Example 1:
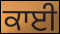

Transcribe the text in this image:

ਕਾਈ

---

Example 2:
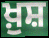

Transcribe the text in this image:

ਖ਼ੁਸ਼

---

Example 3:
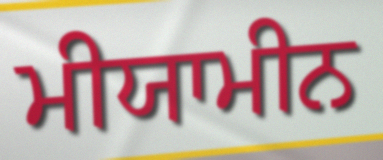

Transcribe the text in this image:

ਮੀਯਾਮੀਨ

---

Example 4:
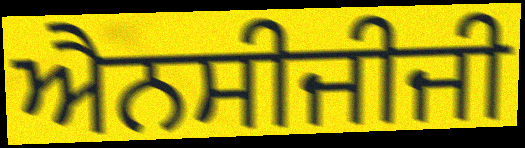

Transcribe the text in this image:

ਐਨਸੀਜੀਜੀ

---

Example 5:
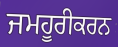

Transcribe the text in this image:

ਜਮਹੂਰੀਕਰਨ